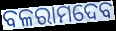
ବଳରାମଦେବ